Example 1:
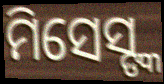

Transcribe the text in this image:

ମିସେସ୍ଙ୍କ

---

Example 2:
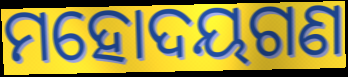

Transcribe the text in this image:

ମହୋଦୟଗଣ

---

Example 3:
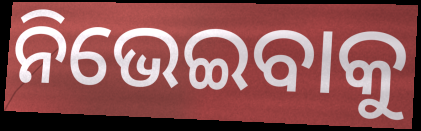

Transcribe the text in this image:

ନିଭେଇବାକୁ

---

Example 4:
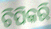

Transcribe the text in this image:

ଚିପିକରି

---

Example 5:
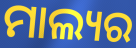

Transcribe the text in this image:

ମାଲ୍ୟର